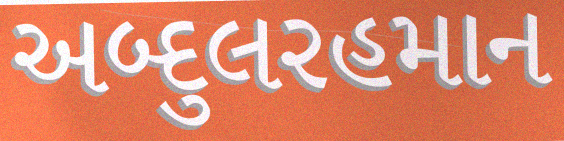
અબ્દુલરહમાન